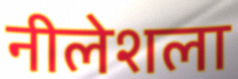
नीलेशला